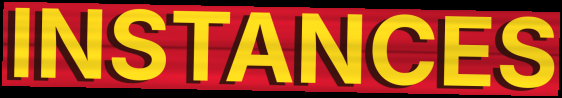
INSTANCES